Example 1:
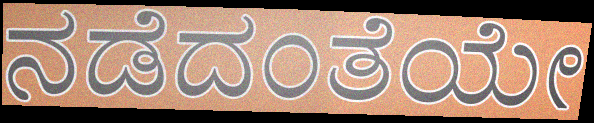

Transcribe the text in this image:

ನಡೆದಂತೆಯೇ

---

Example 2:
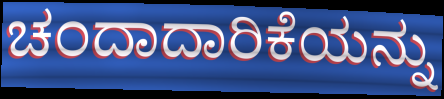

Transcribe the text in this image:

ಚಂದಾದಾರಿಕೆಯನ್ನು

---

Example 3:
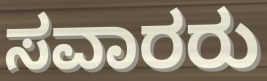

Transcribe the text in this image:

ಸವಾರರು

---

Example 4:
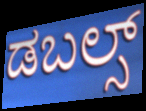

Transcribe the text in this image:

ಡಬಲ್ಸ್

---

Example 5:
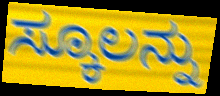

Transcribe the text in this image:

ಸ್ಕೂಲನ್ನು